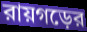
রায়গড়ের